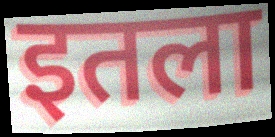
इतला